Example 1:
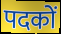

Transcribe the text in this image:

पदकों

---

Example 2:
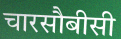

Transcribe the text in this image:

चारसौबीसी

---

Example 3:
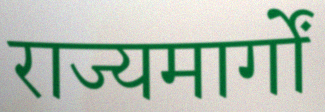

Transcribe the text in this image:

राज्यमार्गों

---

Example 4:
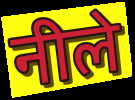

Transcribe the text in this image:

नीले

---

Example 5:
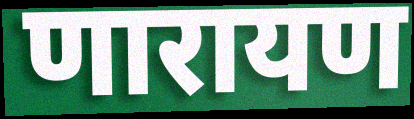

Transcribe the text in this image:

णारायण